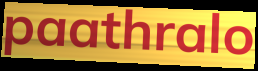
paathralo